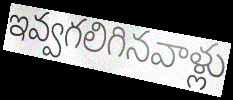
ఇవ్వగలిగినవాళ్లు